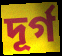
দূৰ্গ